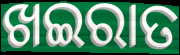
ଖଇରାତ